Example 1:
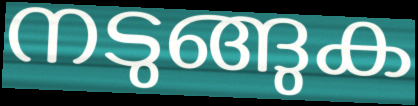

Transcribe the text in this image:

നടുങ്ങുക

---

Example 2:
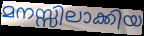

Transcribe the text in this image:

മനസ്സിലാക്കിയ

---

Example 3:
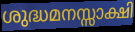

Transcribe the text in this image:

ശുദ്ധമനസ്സാക്ഷി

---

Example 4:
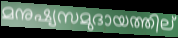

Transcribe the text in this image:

മനുഷ്യസമുദായത്തില്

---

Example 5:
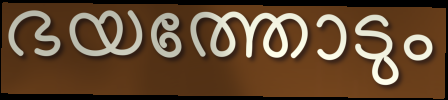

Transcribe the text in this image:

ഭയത്തോടും